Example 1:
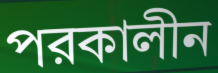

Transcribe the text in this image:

পরকালীন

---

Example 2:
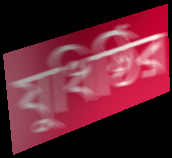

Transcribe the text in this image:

যুধিষ্ঠির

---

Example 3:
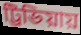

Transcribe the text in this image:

ট্রিভিয়ায়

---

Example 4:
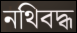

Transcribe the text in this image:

নথিবদ্ধ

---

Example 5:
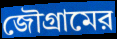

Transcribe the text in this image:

জৌগ্রামের